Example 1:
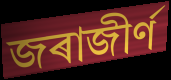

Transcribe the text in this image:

জৰাজীৰ্ণ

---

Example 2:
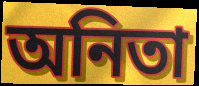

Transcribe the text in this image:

অনিতা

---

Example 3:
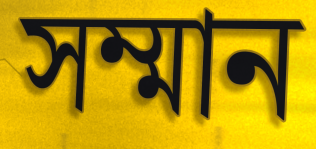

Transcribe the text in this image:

সম্মান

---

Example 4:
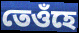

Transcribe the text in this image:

তেওঁহে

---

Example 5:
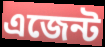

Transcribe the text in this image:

এজেন্ট